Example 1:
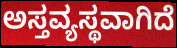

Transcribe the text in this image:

ಅಸ್ತವ್ಯಸ್ಥವಾಗಿದೆ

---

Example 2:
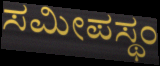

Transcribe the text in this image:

ಸಮೀಪಸ್ಥಂ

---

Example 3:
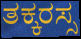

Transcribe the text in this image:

ತಕ್ಕರಸ್ಸ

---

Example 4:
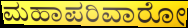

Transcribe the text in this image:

ಮಹಾಪರಿವಾರೋ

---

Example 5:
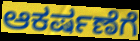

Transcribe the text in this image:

ಆಕರ್ಷಣೆಗೆ